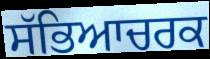
ਸੱਭਿਆਚਰਕ